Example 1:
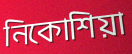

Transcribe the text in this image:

নিকোশিয়া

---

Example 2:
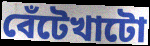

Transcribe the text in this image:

বেঁটেখাটো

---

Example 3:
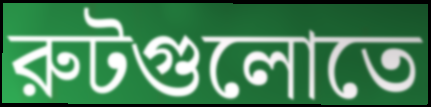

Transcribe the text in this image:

রুটগুলোতে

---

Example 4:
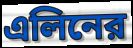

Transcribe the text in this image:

এলিনের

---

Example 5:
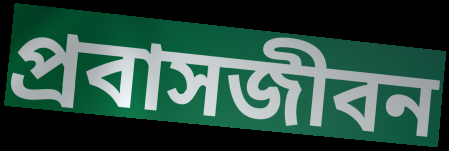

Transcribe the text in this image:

প্রবাসজীবন